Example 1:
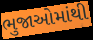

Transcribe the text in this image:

ભુજાઓમાંથી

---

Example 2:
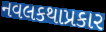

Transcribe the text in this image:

નવલકથાપ્રકાર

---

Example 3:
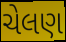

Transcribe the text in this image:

ચેલણ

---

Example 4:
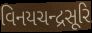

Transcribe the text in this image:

વિનયચન્દ્રસૂરિ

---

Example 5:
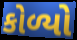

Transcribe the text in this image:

કોળ્યો